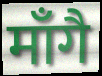
माँगै